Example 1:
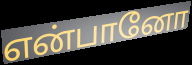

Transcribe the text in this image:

என்பானோ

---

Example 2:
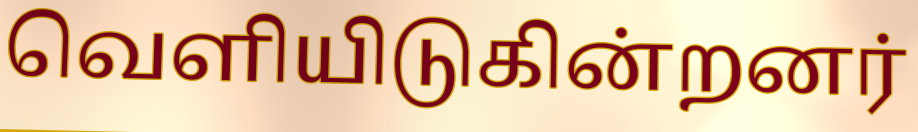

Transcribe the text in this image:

வெளியிடுகின்றனர்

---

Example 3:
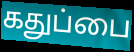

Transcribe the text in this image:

கதுப்பை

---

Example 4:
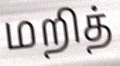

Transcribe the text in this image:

மறித்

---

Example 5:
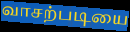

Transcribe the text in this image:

வாசற்படியை